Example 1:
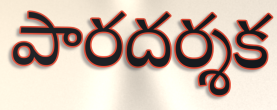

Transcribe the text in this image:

పారదర్శక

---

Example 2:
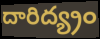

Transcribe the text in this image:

దారిద్య్రం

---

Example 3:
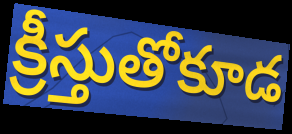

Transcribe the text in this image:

క్రీస్తుతోకూడ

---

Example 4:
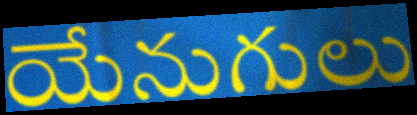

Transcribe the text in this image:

యేనుగులు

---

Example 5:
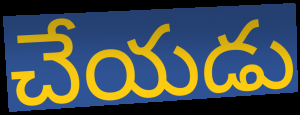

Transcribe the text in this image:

చేయడు